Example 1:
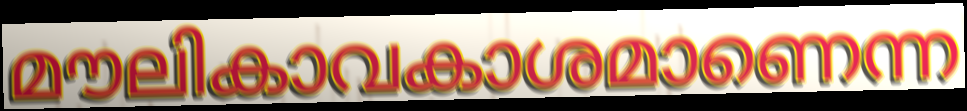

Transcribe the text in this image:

മൗലികാവകാശമാണെന്ന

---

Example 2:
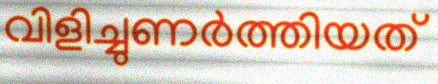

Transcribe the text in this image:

വിളിച്ചുണർത്തിയത്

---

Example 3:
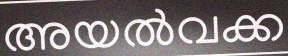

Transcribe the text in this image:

അയൽവക്ക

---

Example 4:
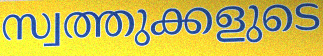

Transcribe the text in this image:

സ്വത്തുക്കളുടെ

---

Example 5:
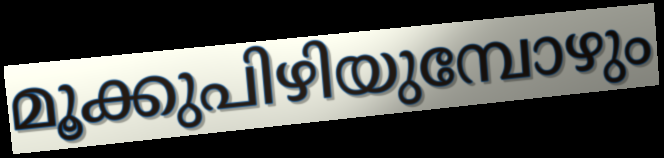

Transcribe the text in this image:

മൂക്കുപിഴിയുമ്പോഴും